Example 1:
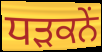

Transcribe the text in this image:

ਧੜਕਨੇਂ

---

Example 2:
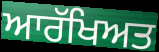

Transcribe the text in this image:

ਆਰੱਖਿਅਤ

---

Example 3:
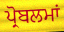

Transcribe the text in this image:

ਪ੍ਰੋਬਲਮਾਂ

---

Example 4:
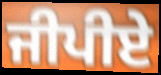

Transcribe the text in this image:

ਜੀਪੀਏ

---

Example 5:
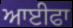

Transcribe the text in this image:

ਆਈਫਾ